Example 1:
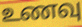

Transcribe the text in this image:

உணவு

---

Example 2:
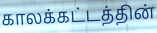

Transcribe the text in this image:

காலக்கட்டத்தின்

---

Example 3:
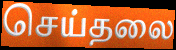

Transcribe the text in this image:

செய்தலை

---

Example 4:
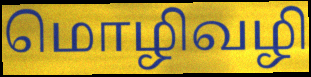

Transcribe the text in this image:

மொழிவழி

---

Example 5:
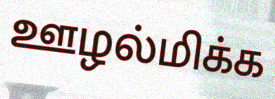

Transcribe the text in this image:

ஊழல்மிக்க